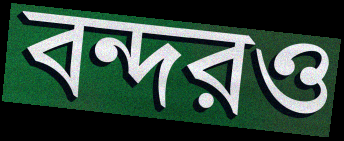
বন্দরও